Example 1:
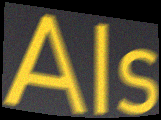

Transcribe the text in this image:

AIs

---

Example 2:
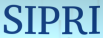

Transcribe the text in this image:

SIPRI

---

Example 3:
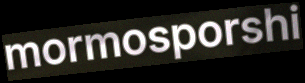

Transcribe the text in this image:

mormosporshi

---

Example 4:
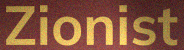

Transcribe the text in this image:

Zionist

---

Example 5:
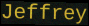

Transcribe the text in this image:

Jeffrey